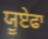
ਯੂਏਫਾ